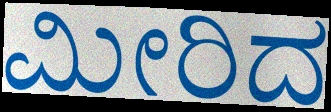
ಮೀರಿದ